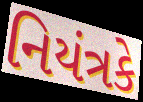
નિયંત્રકે